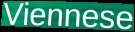
Viennese